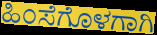
ಹಿಂಸೆಗೊಳಗಾಗಿ